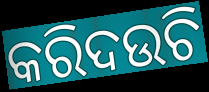
କରିଦଉଚି